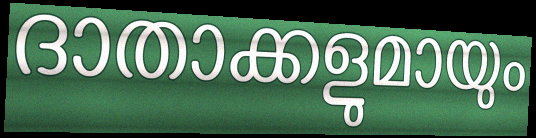
ദാതാക്കളുമായും